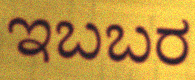
ಇಬಬರ